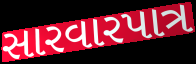
સારવારપાત્ર